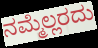
ನಮ್ಮೆಲ್ಲರದು